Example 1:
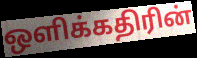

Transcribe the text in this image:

ஒளிக்கதிரின்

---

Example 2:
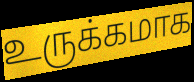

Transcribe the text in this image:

உருக்கமாக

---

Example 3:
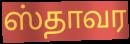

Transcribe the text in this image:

ஸ்தாவர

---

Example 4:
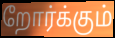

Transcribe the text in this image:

றோர்க்கும்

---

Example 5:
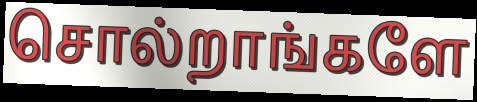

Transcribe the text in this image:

சொல்றாங்களே